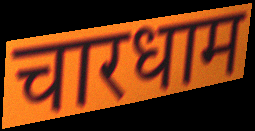
चारधाम